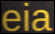
eia